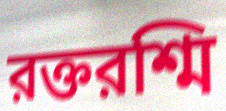
রক্তরশ্মি